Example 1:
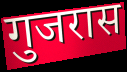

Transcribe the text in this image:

गुजरास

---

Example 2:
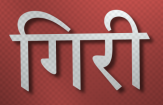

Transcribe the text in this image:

गिरी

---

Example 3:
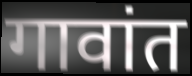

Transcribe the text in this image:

गावांत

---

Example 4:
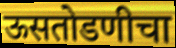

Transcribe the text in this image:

ऊसतोडणीचा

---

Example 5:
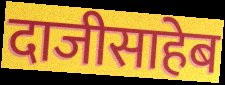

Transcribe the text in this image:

दाजीसाहेब